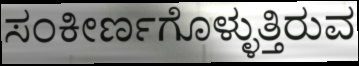
ಸಂಕೀರ್ಣಗೊಳ್ಳುತ್ತಿರುವ